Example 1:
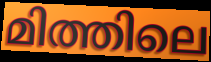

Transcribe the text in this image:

മിത്തിലെ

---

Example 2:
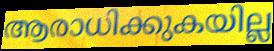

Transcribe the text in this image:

ആരാധിക്കുകയില്ല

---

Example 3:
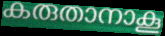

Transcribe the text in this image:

കരുതാനാകൂ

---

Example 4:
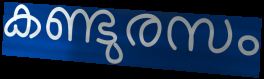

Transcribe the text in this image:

കണ്ടുരസം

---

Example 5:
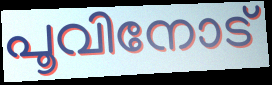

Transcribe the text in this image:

പൂവിനോട്